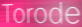
Torode